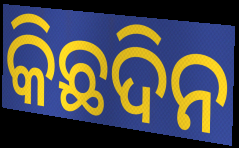
କିଛଦିନ